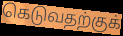
கெடுவதற்குக்